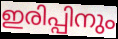
ഇരിപ്പിനും